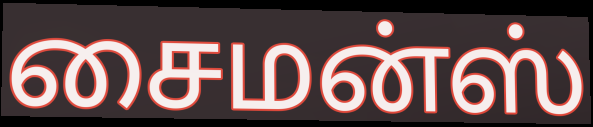
சைமன்ஸ்